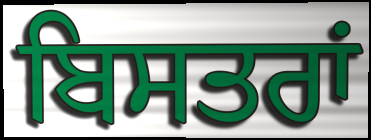
ਬਿਸਤਰਾਂ